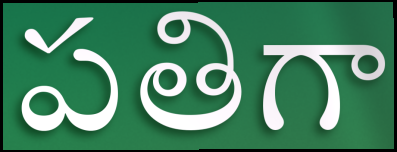
పతిగా